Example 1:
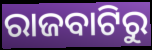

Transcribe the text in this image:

ରାଜବାଟିରୁ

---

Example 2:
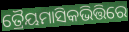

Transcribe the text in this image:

ତ୍ରୈୟମାସିକଭିତ୍ତିରେ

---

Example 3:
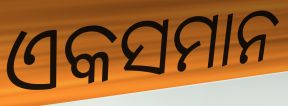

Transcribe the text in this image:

ଏକସମାନ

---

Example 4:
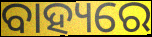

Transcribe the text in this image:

ବାହ୍ୟରେ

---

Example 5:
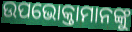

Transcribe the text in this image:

ଉପଭୋକ୍ତାମାନଙ୍କୁ